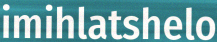
imihlatshelo